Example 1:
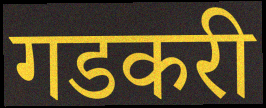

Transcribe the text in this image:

गडकरी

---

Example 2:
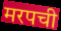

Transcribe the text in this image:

मरपची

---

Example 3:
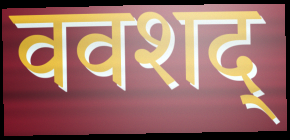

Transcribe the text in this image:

ववशद्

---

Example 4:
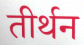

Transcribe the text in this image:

तीर्थन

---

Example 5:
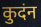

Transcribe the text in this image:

कुदंन